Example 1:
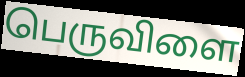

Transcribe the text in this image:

பெருவிளை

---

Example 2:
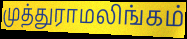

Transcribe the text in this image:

முத்துராமலிங்கம்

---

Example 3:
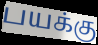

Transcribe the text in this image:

பயக்கு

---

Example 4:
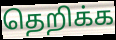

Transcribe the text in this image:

தெறிக்க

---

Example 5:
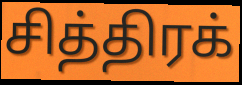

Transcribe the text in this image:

சித்திரக்